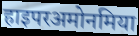
हाइपरअमोनमिया